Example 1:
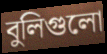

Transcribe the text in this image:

বুলিগুলো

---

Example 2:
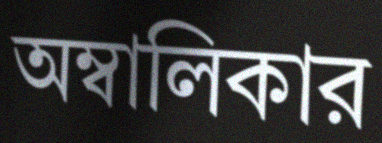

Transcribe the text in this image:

অম্বালিকার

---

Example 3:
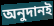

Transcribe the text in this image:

অনুদানই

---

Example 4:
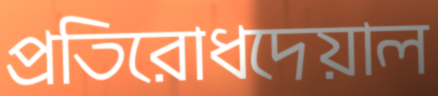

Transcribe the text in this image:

প্রতিরোধদেয়াল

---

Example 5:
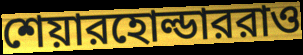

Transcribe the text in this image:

শেয়ারহোল্ডাররাও